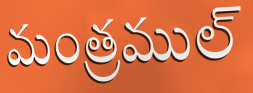
మంత్రముల్